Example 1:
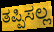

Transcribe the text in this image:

ತಪ್ಪಿಸಲ್ಲ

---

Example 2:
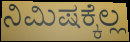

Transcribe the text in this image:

ನಿಮಿಷಕ್ಕೆಲ್ಲ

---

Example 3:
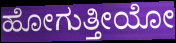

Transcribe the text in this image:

ಹೋಗುತ್ತೀಯೋ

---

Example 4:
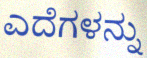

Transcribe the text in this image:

ಎದೆಗಳನ್ನು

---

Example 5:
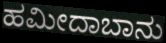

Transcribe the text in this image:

ಹಮೀದಾಬಾನು